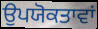
ਉਪਯੋਕਤਾਵਾਂ